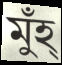
মুঁহ্